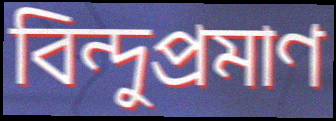
বিন্দুপ্রমাণ